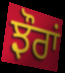
ਝੌਰਾਂ